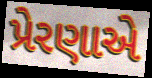
પ્રેરણાએ